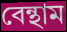
বেন্থাম